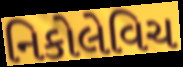
નિકોલેવિચ